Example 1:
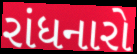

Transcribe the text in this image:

રાંધનારો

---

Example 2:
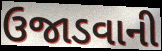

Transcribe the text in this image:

ઉજાડવાની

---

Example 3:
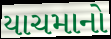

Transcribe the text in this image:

યાચમાનો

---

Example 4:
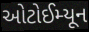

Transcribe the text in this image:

ઓટોઈમ્યૂન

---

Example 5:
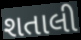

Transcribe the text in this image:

શતાલી